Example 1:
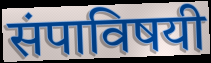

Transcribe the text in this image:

संपाविषयी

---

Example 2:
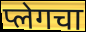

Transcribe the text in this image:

प्लेगचा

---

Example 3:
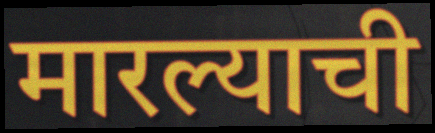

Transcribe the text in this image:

मारल्याची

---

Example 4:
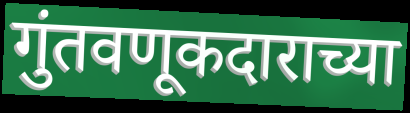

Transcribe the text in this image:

गुंतवणूकदाराच्या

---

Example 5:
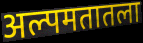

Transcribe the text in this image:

अल्पमतातला